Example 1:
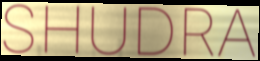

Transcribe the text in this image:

SHUDRA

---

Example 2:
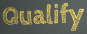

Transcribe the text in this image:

Qualify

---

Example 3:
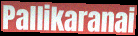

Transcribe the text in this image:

Pallikaranai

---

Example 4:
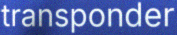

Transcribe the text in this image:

transponder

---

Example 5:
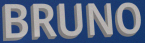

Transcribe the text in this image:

BRUNO